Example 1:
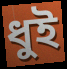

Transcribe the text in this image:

ধুই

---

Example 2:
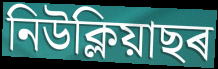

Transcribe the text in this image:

নিউক্লিয়াছৰ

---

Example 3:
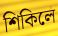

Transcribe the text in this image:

শিকিলে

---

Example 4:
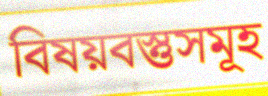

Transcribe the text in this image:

বিষয়বস্তুসমূহ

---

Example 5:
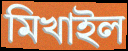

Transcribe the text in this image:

মিখাইল